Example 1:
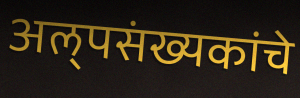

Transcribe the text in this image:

अल्पसंख्यकांचे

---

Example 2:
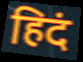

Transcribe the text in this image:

हिदं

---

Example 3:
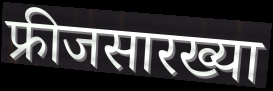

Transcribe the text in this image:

फ्रीजसारख्या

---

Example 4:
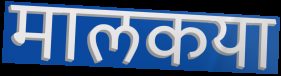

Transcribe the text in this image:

मालकया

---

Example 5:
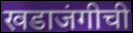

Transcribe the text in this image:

खडाजंगीची